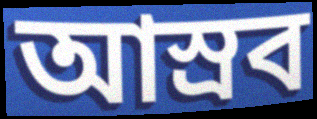
আস্রব